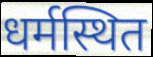
धर्मस्थित